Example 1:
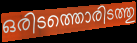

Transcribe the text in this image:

ഒരിടത്തൊരിടത്തു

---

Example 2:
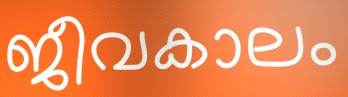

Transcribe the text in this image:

ജീവകാലം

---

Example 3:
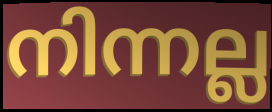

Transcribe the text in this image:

നിന്നല്ല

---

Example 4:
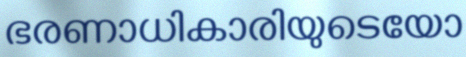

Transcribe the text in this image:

ഭരണാധികാരിയുടെയോ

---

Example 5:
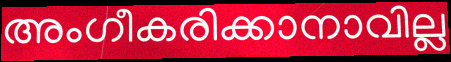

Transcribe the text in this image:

അംഗീകരിക്കാനാവില്ല